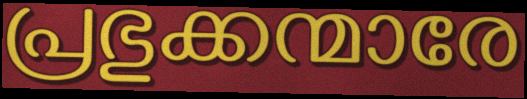
പ്രഭുക്കന്മാരേ